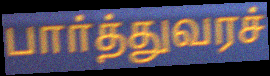
பார்த்துவரச்